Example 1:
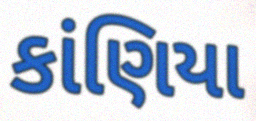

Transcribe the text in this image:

કાંણિયા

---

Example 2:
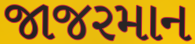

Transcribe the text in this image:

જાજરમાન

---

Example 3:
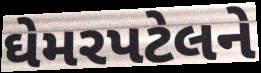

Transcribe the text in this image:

ઘેમરપટેલને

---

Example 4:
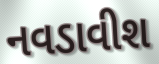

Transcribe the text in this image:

નવડાવીશ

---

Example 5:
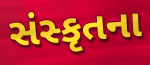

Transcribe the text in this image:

સંસ્કૃતના